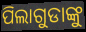
ପିଲାଗୁଡାଙ୍କୁ